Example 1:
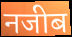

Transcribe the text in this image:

नजीब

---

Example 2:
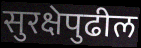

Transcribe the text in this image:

सुरक्षेपुढील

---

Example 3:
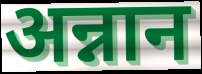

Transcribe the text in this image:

अन्नान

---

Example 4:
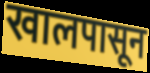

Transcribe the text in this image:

खालपासून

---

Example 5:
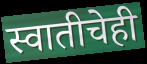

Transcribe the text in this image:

स्वातीचेही